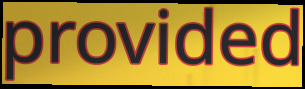
provided